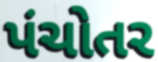
પંચોતર